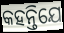
କହନ୍ତିଯେ